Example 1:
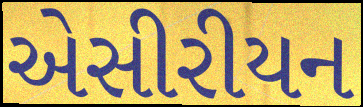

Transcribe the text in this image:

એસીરીયન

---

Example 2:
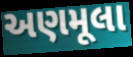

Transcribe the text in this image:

અણમૂલા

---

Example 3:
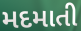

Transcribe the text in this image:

મદમાતી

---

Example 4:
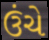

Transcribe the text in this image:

ઉંચે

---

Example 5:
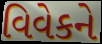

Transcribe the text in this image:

વિવેકને